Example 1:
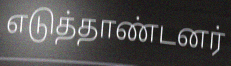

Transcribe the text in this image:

எடுத்தாண்டனர்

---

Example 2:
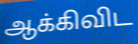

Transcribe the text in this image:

ஆக்கிவிட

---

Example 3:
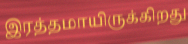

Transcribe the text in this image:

இரத்தமாயிருக்கிறது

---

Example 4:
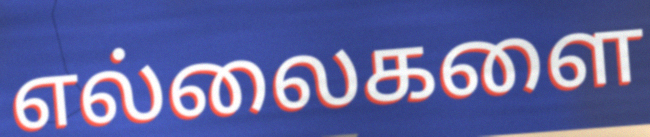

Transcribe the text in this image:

எல்லைகளை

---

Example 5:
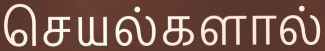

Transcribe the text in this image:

செயல்களால்